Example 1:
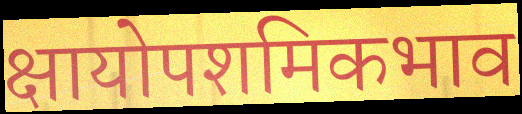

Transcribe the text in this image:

क्षायोपशमिकभाव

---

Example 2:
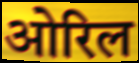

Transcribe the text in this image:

ओरिल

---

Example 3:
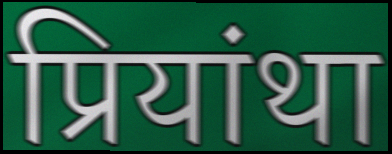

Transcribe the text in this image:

प्रियांथा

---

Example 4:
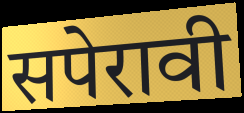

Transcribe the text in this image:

सपेरावी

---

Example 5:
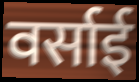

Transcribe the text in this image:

वर्साई